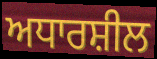
ਅਧਾਰਸ਼ੀਲ